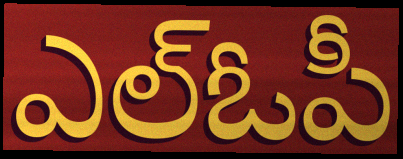
ఎల్ఓపీ